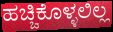
ಹಚ್ಚಿಕೊಳ್ಳಲಿಲ್ಲ